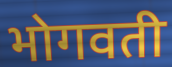
भोगवती